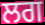
ਲਗ